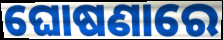
ଘୋଷଣାରେ